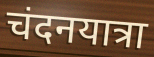
चंदनयात्रा